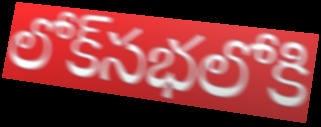
లోక్‌సభలోకి